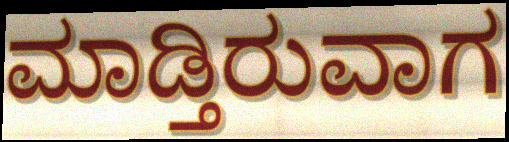
ಮಾಡ್ತಿರುವಾಗ